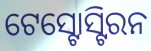
ଟେସ୍ଟୋସ୍ଟିରନ